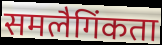
समलैगिंकता